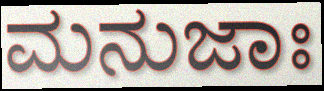
ಮನುಜಾಃ